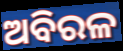
ଅବିରଳ